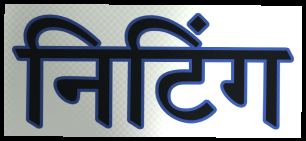
निटिंग